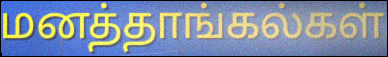
மனத்தாங்கல்கள்